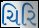
ચિરિ